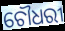
ଚୌଧରୀ